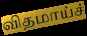
விதமாய்ச்